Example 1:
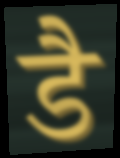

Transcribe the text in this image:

डै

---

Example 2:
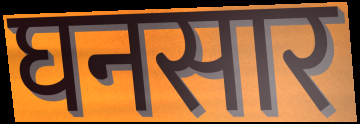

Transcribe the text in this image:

घनसार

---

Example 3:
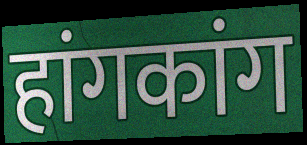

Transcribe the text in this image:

हांगकांग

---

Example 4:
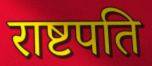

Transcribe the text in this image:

राष्टपति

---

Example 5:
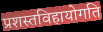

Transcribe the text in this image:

प्रशस्तविहायोगति